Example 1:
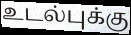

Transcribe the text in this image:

உடல்புக்கு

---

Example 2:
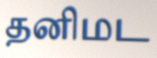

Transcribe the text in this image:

தனிமட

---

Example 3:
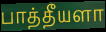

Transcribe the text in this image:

பாத்தீயளா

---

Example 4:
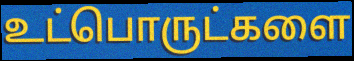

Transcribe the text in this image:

உட்பொருட்களை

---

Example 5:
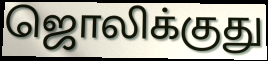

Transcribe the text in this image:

ஜொலிக்குது